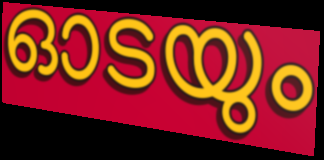
ഓടയും